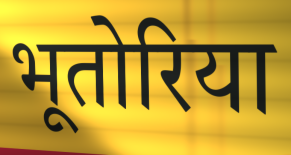
भूतोरिया